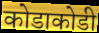
कोडाकोडी